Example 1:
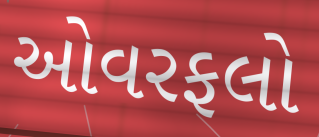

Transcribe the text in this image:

ઓવરફલો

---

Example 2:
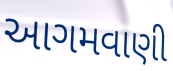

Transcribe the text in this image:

આગમવાણી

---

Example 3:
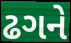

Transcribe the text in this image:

ઢગને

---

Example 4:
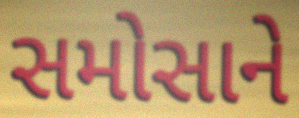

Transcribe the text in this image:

સમોસાને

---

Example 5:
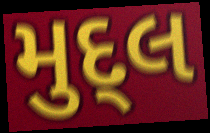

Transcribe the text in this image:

મુદ્લ